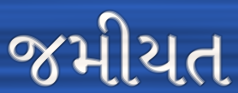
જમીયત